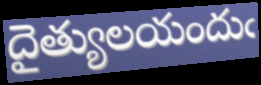
దైత్యులయందుఁ